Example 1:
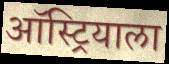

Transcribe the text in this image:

ऑस्ट्रियाला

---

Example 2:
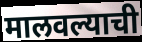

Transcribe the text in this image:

मालवल्याची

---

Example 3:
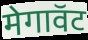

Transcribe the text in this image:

मेगावॅट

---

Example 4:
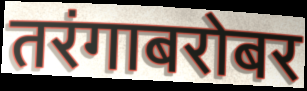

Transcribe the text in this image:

तरंगाबरोबर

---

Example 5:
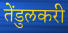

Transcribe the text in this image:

तेंडुलकरी